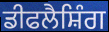
ਡੀਫਲੈਸ਼ਿੰਗ